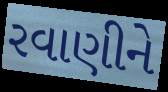
રવાણીને